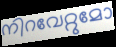
നിറവേറ്റുമോ